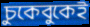
চুকেবুকেই